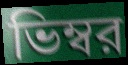
ভিম্বর